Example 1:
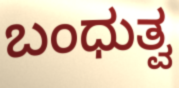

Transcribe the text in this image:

ಬಂಧುತ್ವ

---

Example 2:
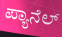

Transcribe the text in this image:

ಪ್ಯಾನೆಲ್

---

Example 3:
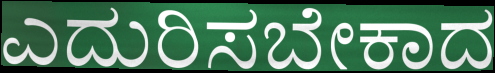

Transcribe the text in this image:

ಎದುರಿಸಬೇಕಾದ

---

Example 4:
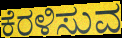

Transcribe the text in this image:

ಕೆರಳಿಸುವ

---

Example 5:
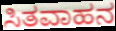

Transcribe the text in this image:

ಸಿತವಾಹನ